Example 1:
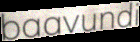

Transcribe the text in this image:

baavundi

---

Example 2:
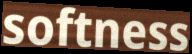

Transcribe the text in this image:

softness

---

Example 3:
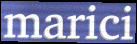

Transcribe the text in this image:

marici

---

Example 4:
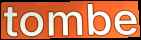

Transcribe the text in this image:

tombe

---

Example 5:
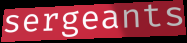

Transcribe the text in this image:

sergeants